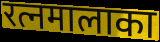
रत्नमालाका